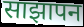
साझापन